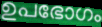
ഉപഭോഗം